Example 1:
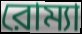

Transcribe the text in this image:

রোম্যা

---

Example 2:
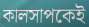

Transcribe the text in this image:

কালসাপকেই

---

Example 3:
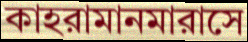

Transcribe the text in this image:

কাহরামানমারাসে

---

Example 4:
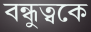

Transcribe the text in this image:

বন্ধুত্বকে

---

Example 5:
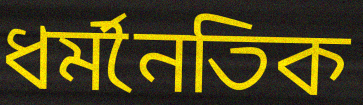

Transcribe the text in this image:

ধর্মনৈতিক